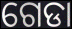
ଗେଡା